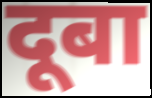
दूबा